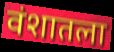
वंशातला